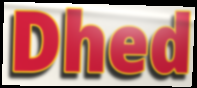
Dhed